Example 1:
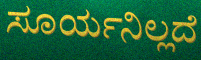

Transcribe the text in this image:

ಸೂರ್ಯನಿಲ್ಲದೆ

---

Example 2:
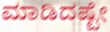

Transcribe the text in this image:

ಮಾಡಿದಷ್ಟೇ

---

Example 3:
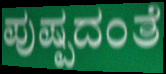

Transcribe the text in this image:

ಪುಷ್ಪದಂತೆ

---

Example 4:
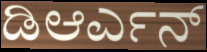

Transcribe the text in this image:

ಡಿಆರ್ಎನ್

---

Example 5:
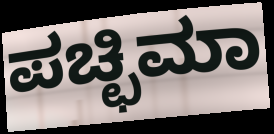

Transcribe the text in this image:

ಪಚ್ಛಿಮಾ